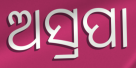
ଅସ୍ରପା